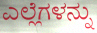
ಎಲ್ಲೆಗಳನ್ನು